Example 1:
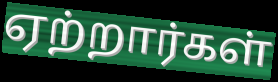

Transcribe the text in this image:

ஏற்றார்கள்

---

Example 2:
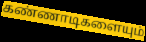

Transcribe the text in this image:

கண்ணாடிகளையும்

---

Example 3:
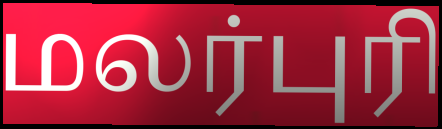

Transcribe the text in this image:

மலர்புரி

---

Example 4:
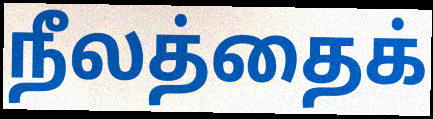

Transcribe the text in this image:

நீலத்தைக்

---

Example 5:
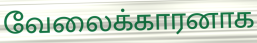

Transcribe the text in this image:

வேலைக்காரனாக